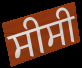
ਸੀਸੀ